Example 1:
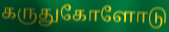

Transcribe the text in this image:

கருதுகோளோடு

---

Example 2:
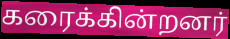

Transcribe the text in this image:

கரைக்கின்றனர்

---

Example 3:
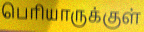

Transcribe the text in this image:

பெரியாருக்குள்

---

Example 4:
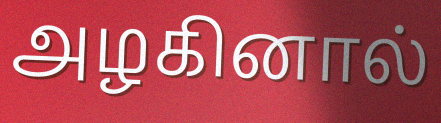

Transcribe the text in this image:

அழகினால்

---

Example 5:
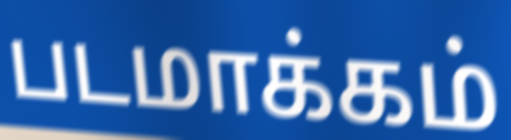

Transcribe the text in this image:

படமாக்கம்